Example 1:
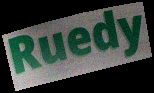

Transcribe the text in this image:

Ruedy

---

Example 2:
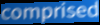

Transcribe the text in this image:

comprised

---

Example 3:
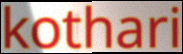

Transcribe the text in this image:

kothari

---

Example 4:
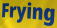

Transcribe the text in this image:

Frying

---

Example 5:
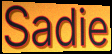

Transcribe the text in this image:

Sadie